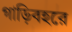
গাড়িবহরে